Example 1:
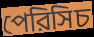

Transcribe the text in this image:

পেরিসিচ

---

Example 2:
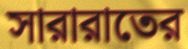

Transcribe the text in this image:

সারারাতের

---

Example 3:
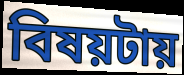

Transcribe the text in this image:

বিষয়টায়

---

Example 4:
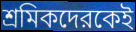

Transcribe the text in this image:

শ্রমিকদেরকেই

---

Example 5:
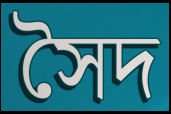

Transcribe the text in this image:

সৈদ